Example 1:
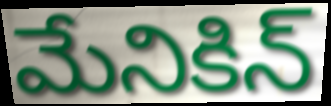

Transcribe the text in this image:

మేనికిన్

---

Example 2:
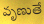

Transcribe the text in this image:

వృణుతే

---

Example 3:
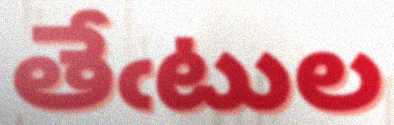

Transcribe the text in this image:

తేఁటుల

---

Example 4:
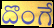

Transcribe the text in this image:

దొంగే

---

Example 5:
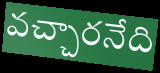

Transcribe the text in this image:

వచ్చారనేది